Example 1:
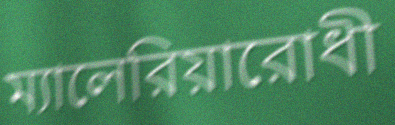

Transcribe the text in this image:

ম্যালেরিয়ারোধী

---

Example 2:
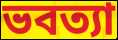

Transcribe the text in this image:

ভবত্যা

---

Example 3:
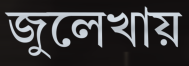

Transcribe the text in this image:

জুলেখায়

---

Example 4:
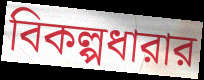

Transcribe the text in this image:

বিকল্পধারার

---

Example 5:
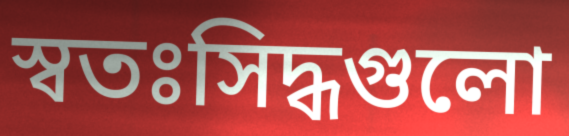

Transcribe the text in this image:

স্বতঃসিদ্ধগুলো